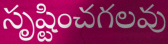
సృష్టించగలవు